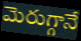
మెరుగ్గానే